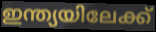
ഇന്ത്യയിലേക്ക്